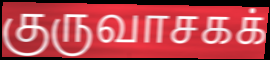
குருவாசகக்